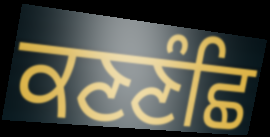
ਕਣਣੰਛਿ